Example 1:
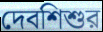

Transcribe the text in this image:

দেবশিশুর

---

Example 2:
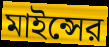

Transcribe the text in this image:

মাইন্সের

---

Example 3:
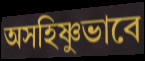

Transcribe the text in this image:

অসহিষ্ণুভাবে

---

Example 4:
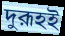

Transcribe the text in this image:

দুরূহই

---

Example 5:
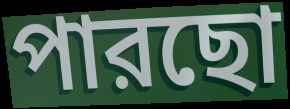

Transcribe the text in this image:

পারছো